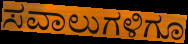
ಸವಾಲುಗಳಿಗೂ